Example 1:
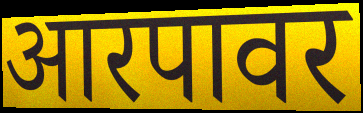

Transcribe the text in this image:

आरपावर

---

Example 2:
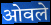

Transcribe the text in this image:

ओवले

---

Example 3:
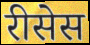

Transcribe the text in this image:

रीसेस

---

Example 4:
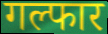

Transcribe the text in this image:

गल्फार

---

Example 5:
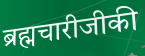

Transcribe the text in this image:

ब्रह्मचारीजीकी